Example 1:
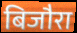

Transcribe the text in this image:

बिजौरा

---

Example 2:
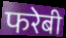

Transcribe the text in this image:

फरेबी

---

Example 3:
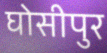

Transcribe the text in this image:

घोसीपुर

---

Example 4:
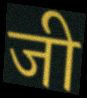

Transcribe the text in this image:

जी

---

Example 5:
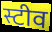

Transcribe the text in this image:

स्‍टीव